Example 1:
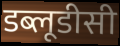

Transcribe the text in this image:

डब्लूडीसी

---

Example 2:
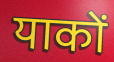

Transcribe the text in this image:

याकों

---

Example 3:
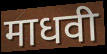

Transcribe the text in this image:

माधवी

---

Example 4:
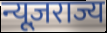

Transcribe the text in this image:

न्यूज़राज्य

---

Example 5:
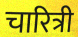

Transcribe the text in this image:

चारित्री